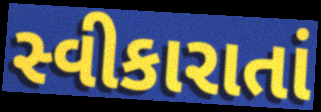
સ્વીકારાતાં